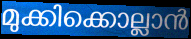
മുക്കിക്കൊല്ലാൻ